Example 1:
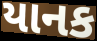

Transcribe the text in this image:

યાનક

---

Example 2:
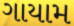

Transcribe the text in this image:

ગાયામ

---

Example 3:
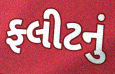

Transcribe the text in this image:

ફ્લીટનું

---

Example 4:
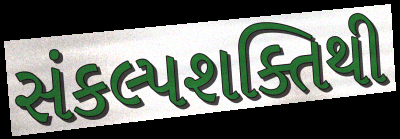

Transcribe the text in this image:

સંકલ્પશક્તિથી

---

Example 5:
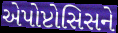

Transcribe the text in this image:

એપોપ્ટોસિસને